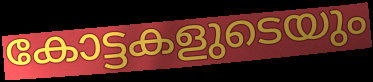
കോട്ടകളുടെയും